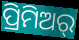
ପ୍ରିମିଅର୍